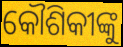
କୌଶିକୀଙ୍କୁ